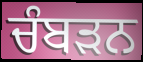
ਚੰਬੜਨ